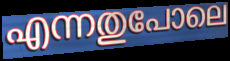
എന്നതുപോലെ